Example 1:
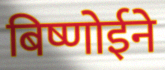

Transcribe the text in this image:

बिष्णोईने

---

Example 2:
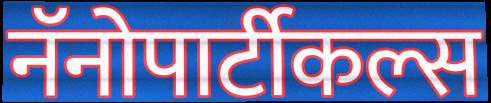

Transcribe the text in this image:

नॅनोपार्टीकल्स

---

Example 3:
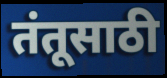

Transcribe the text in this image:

तंतूसाठी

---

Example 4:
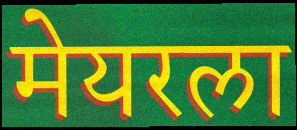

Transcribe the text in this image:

मेयरला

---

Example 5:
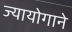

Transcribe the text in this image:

ज्यायोगाने